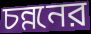
চন্ননের